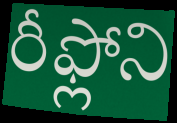
రీఫ్లోని